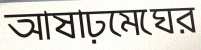
আষাঢ়মেঘের